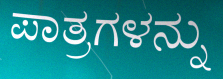
ಪಾತ್ರಗಳನ್ನು